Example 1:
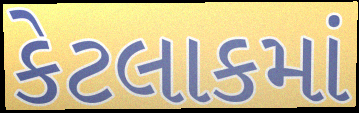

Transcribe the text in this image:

કેટલાકમાં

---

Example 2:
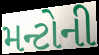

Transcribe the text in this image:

મન્ટોની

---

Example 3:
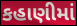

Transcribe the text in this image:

કહાણીમાં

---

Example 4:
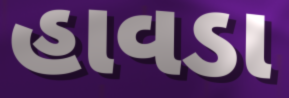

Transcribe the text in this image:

હાવડા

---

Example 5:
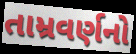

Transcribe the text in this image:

તામ્રવર્ણનો